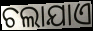
ଚଲାଯାଏ